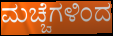
ಮಚ್ಚೆಗಳಿಂದ